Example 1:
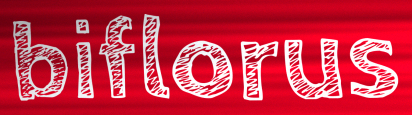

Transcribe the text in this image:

biflorus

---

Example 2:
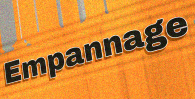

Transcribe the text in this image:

Empannage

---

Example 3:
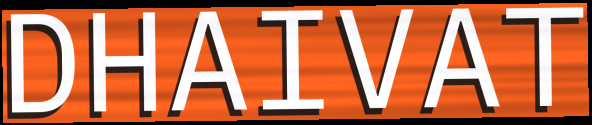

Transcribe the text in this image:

DHAIVAT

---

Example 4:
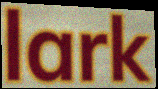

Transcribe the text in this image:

lark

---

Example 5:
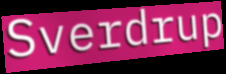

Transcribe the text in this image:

Sverdrup